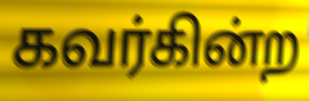
கவர்கின்ற